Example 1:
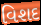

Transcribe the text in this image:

વિશદ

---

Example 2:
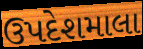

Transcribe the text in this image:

ઉપદેશમાલા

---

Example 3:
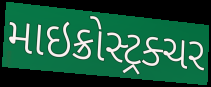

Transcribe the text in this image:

માઇક્રોસ્ટ્રક્ચર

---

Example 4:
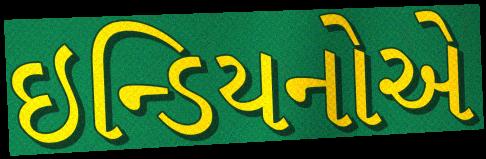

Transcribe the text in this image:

ઇન્ડિયનોએ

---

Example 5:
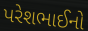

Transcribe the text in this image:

પરેશભાઈનો